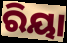
ରିୟା